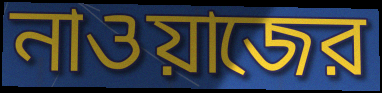
নাওয়াজের